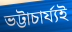
ভট্টাচাৰ্য্যই